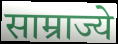
साम्राज्ये